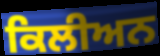
ਕਿਲੀਅਨ